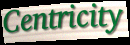
Centricity